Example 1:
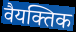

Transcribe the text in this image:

वैयक्तिक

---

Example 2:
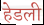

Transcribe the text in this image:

हेडली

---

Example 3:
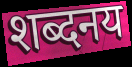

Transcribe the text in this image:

शब्दनय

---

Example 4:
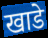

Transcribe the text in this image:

खाडे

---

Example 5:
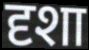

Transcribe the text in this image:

दृशा